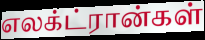
எலக்ட்ரான்கள்